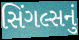
સિંગલ્સનું